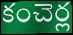
కంచెర్ల